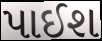
પાઈશ